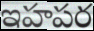
ఇహపర